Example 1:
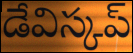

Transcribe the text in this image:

డేవిస్కప్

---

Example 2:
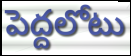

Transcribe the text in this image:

పెద్దలోటు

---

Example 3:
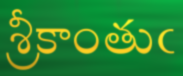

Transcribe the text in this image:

శ్రీకాంతుఁ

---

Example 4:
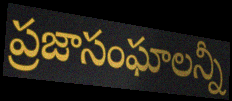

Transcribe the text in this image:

ప్రజాసంఘాలన్నీ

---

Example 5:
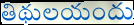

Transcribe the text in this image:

తిథులయందు